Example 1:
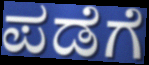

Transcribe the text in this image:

ಪಡೆಗೆ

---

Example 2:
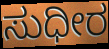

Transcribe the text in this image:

ಸುಧೀರ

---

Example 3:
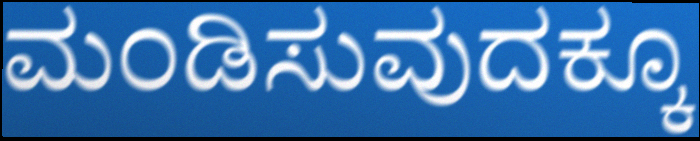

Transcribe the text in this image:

ಮಂಡಿಸುವುದಕ್ಕೂ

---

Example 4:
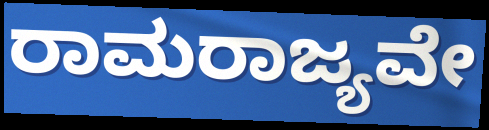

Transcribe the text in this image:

ರಾಮರಾಜ್ಯವೇ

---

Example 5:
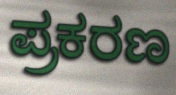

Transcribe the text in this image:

ಪ್ರಕರಣ